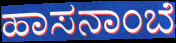
ಹಾಸನಾಂಬೆ